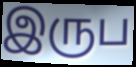
இருப